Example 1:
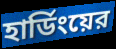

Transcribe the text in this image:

হার্ডিংয়ের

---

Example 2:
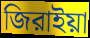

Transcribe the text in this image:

জিরাইয়া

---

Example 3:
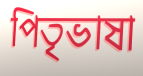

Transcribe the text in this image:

পিতৃভাষা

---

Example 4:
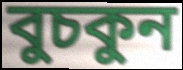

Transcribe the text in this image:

বুচকুন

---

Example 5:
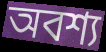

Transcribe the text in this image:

অবশ্য